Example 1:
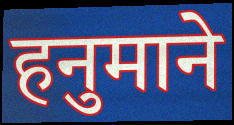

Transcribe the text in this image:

हनुमाने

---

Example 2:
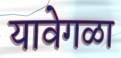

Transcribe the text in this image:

यावेगळा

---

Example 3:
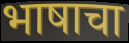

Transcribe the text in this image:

भाषाचा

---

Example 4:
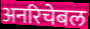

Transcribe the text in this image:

अनरिचेबल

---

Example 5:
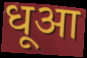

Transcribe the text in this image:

धूआ